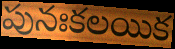
పునఃకలయిక